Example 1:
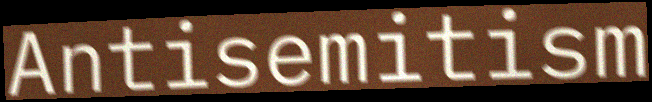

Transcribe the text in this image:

Antisemitism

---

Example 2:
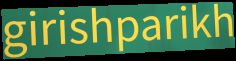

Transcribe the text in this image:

girishparikh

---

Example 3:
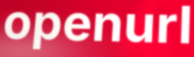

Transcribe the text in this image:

openurl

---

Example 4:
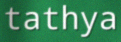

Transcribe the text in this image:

tathya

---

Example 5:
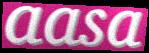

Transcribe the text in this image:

aasa